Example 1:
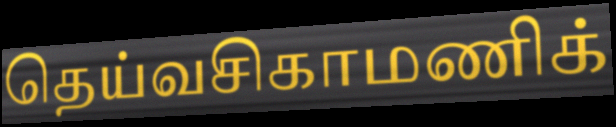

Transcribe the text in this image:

தெய்வசிகாமணிக்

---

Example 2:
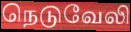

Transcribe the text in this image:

நெடுவேலி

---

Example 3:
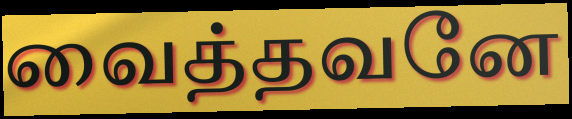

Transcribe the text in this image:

வைத்தவனே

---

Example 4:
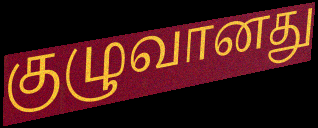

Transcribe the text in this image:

குழுவானது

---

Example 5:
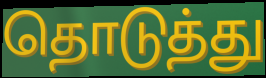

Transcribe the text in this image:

தொடுத்து